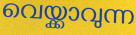
വെയ്ക്കാവുന്ന